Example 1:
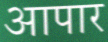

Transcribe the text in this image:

आपार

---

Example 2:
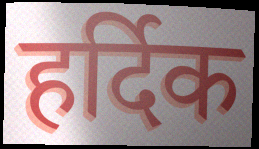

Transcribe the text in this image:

हर्दिक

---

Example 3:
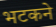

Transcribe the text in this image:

भटकने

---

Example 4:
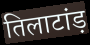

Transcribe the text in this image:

तिलाटांड़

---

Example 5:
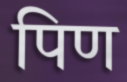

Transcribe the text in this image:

पिण